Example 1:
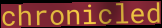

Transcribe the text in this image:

chronicled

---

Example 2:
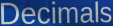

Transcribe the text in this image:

Decimals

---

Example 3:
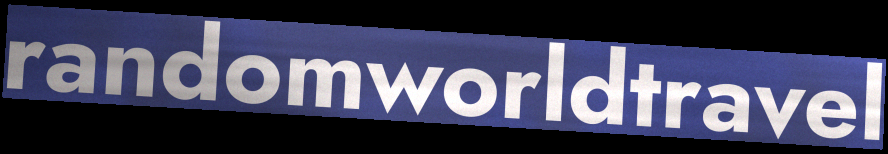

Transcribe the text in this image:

randomworldtravel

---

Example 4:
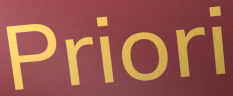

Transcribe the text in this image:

Priori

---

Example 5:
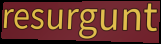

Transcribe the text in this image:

resurgunt